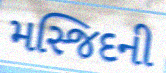
મસ્જિદની